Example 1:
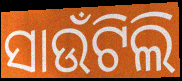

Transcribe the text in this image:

ସାଉଁଟିଲି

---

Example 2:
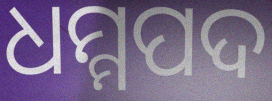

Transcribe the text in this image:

ଧମ୍ମପଦ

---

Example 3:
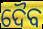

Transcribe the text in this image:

ଦୈବ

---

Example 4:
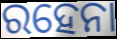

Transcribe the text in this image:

ରହେନା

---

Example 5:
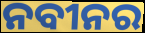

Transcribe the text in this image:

ନବୀନର